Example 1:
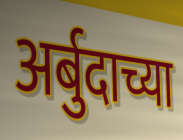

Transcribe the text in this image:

अर्बुदाच्या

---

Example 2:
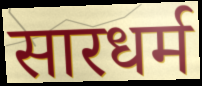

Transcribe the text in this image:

सारधर्म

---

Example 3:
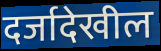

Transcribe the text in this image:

दर्जादेखील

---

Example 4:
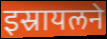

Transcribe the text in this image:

इस्रायलने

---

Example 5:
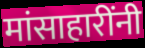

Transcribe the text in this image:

मांसाहारींनी